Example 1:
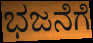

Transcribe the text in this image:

ಭಜನೆಗೆ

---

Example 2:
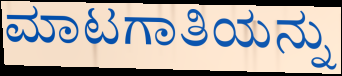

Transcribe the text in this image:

ಮಾಟಗಾತಿಯನ್ನು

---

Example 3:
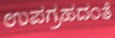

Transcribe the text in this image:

ಉಪಗ್ರಹದಂತೆ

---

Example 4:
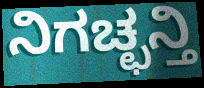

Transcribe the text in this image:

ನಿಗಚ್ಛನ್ತಿ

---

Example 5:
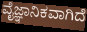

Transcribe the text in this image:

ವೈಜ್ಞಾನಿಕವಾಗಿದೆ